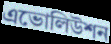
এভোলিউশন